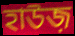
হাউজ়